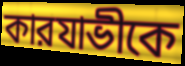
কারযাভীকে